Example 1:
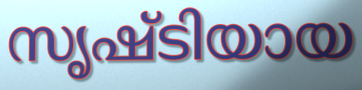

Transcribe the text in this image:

സൃഷ്ടിയായ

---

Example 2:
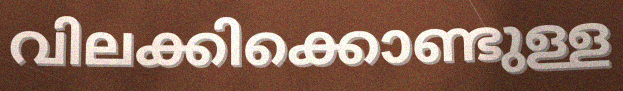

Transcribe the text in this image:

വിലക്കിക്കൊണ്ടുള്ള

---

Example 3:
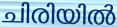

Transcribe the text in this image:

ചിരിയിൽ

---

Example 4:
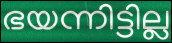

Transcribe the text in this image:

ഭയന്നിട്ടില്ല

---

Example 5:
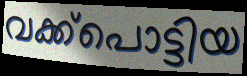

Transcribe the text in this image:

വക്ക്പൊട്ടിയ